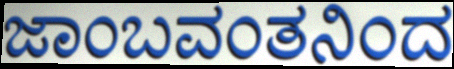
ಜಾಂಬವಂತನಿಂದ